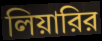
লিয়ারির